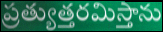
ప్రత్యుత్తరమిస్తాను